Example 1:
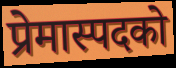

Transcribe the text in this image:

प्रेमास्पदको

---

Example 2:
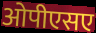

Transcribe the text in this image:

ओपीएसए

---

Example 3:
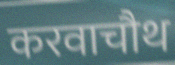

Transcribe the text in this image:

करवाचौथ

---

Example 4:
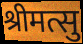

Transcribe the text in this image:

श्रीमत्सु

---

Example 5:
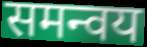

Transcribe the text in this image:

समन्वय